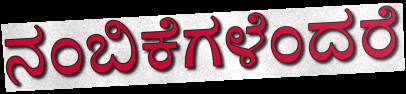
ನಂಬಿಕೆಗಳೆಂದರೆ